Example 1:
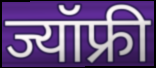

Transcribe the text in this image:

ज्यॉफ्री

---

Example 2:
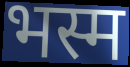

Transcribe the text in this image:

भस्म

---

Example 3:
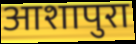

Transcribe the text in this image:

आशापुरा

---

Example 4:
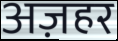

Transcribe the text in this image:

अज़हर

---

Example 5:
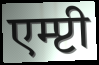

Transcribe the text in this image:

एम्प्टी